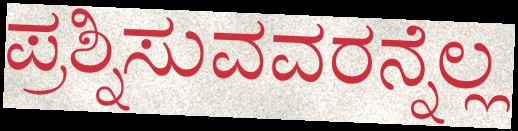
ಪ್ರಶ್ನಿಸುವವರನ್ನೆಲ್ಲ